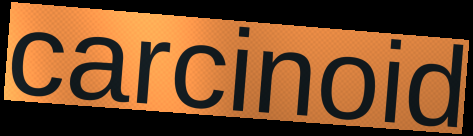
carcinoid